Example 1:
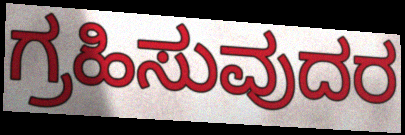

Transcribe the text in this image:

ಗ್ರಹಿಸುವುದರ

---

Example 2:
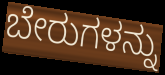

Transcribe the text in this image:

ಬೇರುಗಳನ್ನು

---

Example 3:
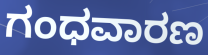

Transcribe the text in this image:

ಗಂಧವಾರಣ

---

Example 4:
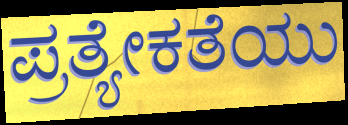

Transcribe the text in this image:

ಪ್ರತ್ಯೇಕತೆಯು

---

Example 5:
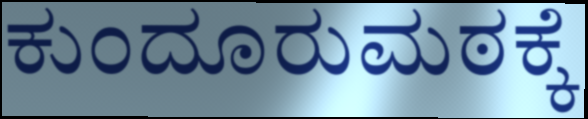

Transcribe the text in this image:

ಕುಂದೂರುಮಠಕ್ಕೆ